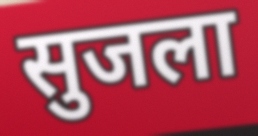
सुजला